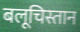
बलूचिस्तान